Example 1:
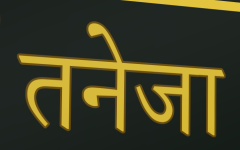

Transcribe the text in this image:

तनेजा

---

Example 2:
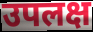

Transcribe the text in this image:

उपलक्ष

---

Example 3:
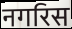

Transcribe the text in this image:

नगरिस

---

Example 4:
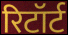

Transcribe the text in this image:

रिटॉर्ट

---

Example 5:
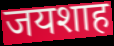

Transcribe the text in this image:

जयशाह